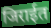
जिराईत